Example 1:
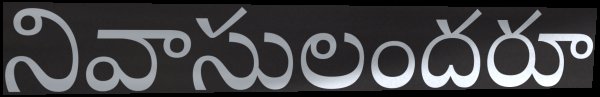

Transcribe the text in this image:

నివాసులందరూ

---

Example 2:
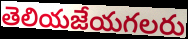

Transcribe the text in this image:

తెలియజేయగలరు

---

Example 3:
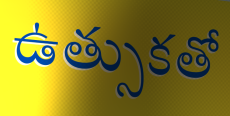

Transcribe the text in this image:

ఉత్సుకతో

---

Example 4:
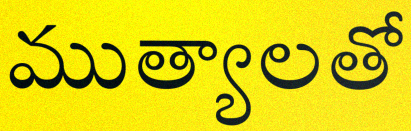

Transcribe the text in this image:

ముత్యాలతో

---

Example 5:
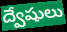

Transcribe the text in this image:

ద్వేషులు